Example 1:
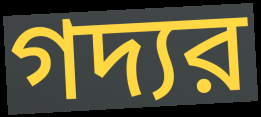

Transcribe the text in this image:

গদ্যর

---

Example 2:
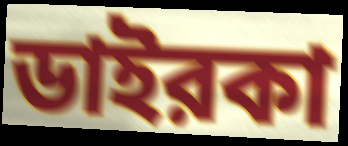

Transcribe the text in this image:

ডাইরকা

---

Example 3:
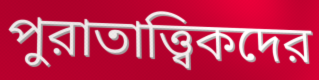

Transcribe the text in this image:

পুরাতাত্ত্বিকদের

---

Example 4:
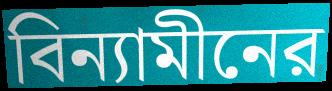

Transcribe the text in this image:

বিন্যামীনের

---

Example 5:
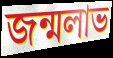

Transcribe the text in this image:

জন্মলাভ